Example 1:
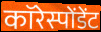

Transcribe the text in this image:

कॉरेस्पोंडेंट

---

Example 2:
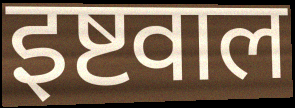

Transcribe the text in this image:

इष्टवाल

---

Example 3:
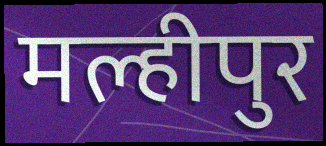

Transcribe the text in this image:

मल्हीपुर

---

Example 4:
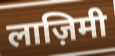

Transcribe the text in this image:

लाज़िमी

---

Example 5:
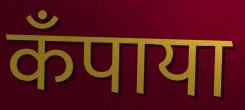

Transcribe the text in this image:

कँपाया